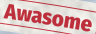
Awasome